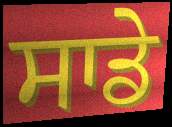
ਸਾਡੇ